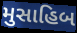
મુસાહિબ